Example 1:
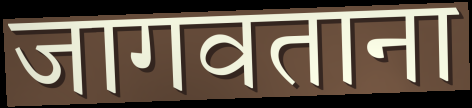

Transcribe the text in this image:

जागवताना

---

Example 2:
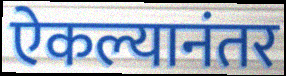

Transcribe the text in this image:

ऐकल्यानंतर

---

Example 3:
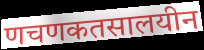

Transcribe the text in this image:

णचणकतसालयीन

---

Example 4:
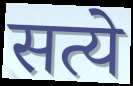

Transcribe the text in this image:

सत्ये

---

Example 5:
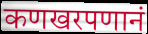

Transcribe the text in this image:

कणखरपणानं